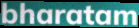
bharatam